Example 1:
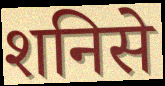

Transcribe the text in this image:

शनिसे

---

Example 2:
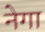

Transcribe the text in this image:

नेगा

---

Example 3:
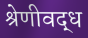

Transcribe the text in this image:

श्रेणीवद्ध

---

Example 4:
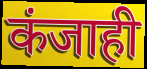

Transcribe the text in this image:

कंजाही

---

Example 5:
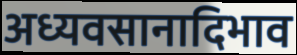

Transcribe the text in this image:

अध्यवसानादिभाव